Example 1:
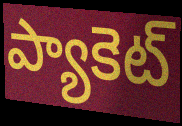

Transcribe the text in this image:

ప్యాకెట్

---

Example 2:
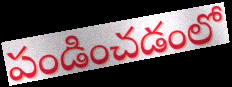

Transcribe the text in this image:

పండించడంలో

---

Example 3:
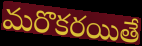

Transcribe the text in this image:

మరొకరయితే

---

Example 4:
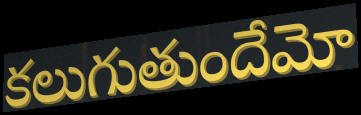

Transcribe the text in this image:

కలుగుతుందేమో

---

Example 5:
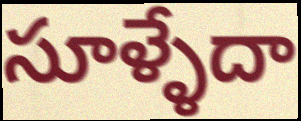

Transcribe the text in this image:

సూళ్ళేదా